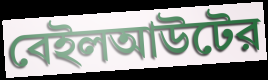
বেইলআউটের